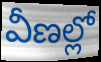
వీణల్లో